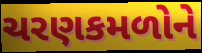
ચરણકમળોને